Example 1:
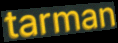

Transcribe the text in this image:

tarman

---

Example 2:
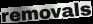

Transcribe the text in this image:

removals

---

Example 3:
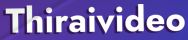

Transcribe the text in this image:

Thiraivideo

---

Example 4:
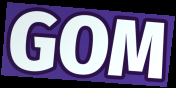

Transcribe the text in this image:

GOM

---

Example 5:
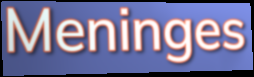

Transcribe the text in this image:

Meninges